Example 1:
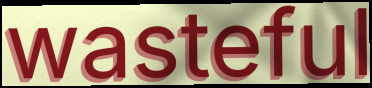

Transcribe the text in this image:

wasteful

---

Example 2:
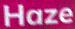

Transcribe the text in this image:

Haze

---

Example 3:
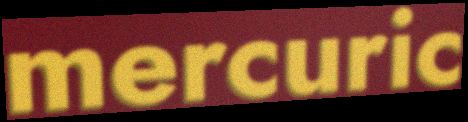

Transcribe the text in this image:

mercuric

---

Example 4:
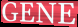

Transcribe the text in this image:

GENE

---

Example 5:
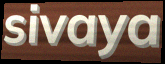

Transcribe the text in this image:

sivaya